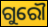
ଗୁରୌ